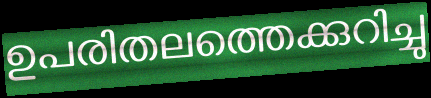
ഉപരിതലത്തെക്കുറിച്ചു